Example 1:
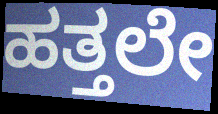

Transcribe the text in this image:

ಹತ್ತಲೇ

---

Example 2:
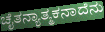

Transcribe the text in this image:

ಚೈತನ್ಯಾತ್ಮಕನಾದೆನು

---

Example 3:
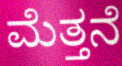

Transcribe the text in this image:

ಮೆತ್ತನೆ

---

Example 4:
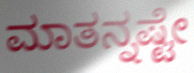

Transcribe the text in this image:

ಮಾತನ್ನಷ್ಟೇ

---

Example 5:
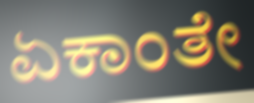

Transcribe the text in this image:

ಏಕಾಂತೇ